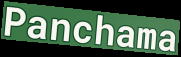
Panchama